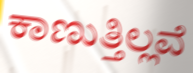
ಕಾಣುತ್ತಿಲ್ಲವೆ